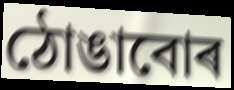
ঠোঙাবোৰ